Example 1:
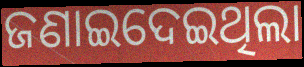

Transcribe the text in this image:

ଜଣାଇଦେଇଥିଲା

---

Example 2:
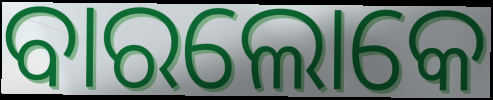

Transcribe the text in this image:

ବାରଲୋକେ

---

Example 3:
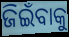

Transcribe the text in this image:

ଜିଇଁବାକୁ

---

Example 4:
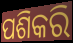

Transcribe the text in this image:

ପଶିକରି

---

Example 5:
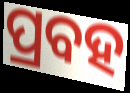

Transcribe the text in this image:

ପ୍ରବହ